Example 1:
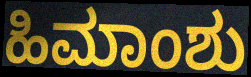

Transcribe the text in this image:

ಹಿಮಾಂಶು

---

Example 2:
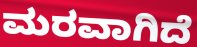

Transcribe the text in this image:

ಮರವಾಗಿದೆ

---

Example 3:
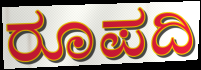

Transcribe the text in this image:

ರೂಪದಿ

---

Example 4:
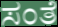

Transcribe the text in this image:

ಸಂತೆ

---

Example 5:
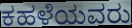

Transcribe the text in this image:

ಕಹಳೆಯವರು